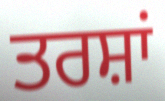
ਤਰਸ਼ਾਂ